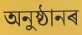
অনুষ্ঠানৰ